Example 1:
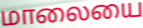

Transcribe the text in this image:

மாலையை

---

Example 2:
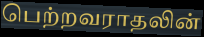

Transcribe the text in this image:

பெற்றவராதலின்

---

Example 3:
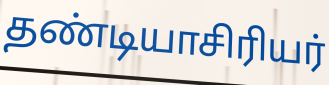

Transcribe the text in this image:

தண்டியாசிரியர்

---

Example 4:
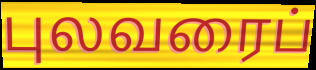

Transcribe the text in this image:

புலவரைப்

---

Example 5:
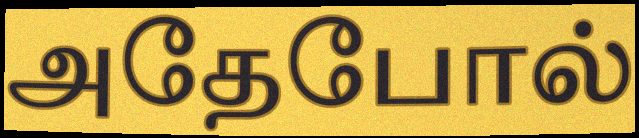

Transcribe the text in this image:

அதேபோல்